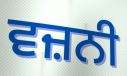
ਵਜ਼ਨੀ